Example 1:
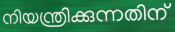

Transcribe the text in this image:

നിയന്ത്രിക്കുന്നതിന്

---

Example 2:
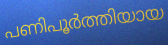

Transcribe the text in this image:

പണിപൂർത്തിയായ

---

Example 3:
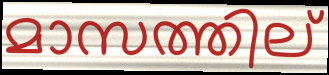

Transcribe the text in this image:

മാസത്തില്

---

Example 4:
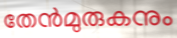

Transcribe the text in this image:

തേൻമുരുകനും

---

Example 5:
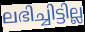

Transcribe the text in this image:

ലഭിച്ചിട്ടില്ല